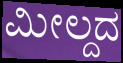
ಮೀಲ್ದದ